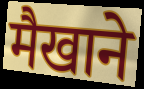
मैखाने